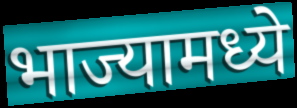
भाज्यामध्ये